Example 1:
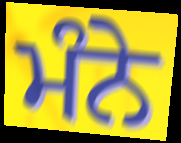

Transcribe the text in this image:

ਮੰਨੇ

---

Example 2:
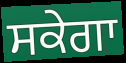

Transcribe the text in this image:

ਸਕੇਗਾ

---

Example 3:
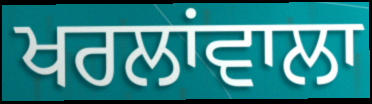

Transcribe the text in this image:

ਖਰਲਾਂਵਾਲਾ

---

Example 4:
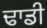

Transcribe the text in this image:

ਢਾਡੀ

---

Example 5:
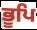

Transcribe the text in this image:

ਭੂਪਿ